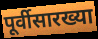
पूर्वीसारख्या